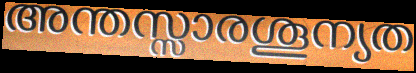
അന്തസ്സാരശൂന്യത